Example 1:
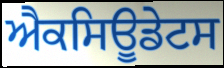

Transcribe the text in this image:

ਐਕਸਿਊਡੇਟਸ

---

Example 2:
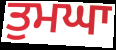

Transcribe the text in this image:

ਤੁਮਘਾ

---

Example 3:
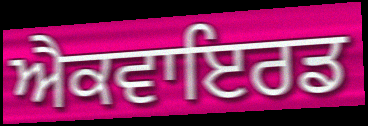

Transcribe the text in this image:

ਐਕਵਾਇਰਡ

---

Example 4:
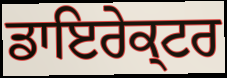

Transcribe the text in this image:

ਡਾਇਰੇਕ੍ਟਰ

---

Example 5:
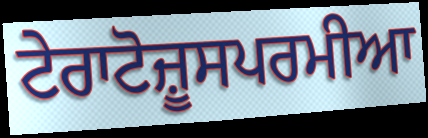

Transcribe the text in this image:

ਟੇਰਾਟੋਜ਼ੂਸਪਰਮੀਆ